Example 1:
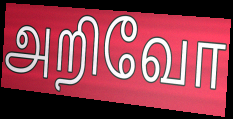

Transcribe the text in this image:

அறிவோ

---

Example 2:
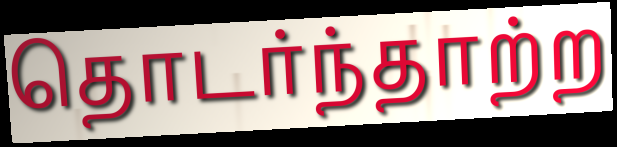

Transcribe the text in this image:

தொடர்ந்தாற்ற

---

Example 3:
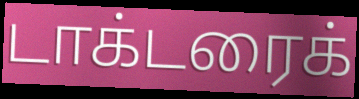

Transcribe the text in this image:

டாக்டரைக்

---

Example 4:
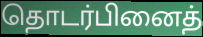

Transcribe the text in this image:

தொடர்பினைத்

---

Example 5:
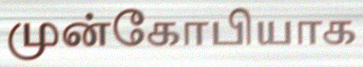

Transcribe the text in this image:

முன்கோபியாக